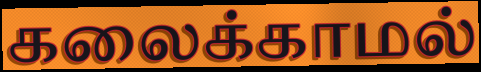
கலைக்காமல்